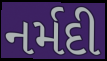
નર્મદી